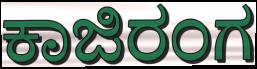
ಕಾಜಿರಂಗ